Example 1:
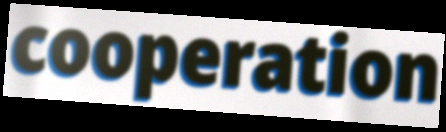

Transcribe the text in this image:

cooperation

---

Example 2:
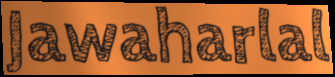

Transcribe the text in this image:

Jawaharlal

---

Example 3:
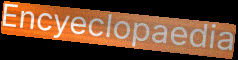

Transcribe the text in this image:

Encyeclopaedia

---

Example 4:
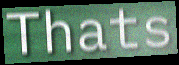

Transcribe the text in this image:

Thats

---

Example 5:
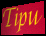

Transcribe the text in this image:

Tipu